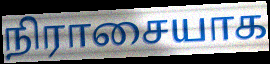
நிராசையாக